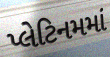
પ્લેટિનમમાં